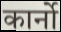
कार्नो